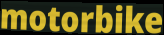
motorbike